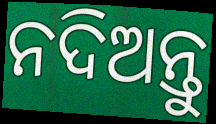
ନଦିଅନ୍ତୁ